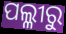
ପଲ୍ଳୀରୁ